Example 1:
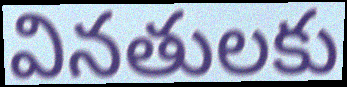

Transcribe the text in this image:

వినతులకు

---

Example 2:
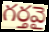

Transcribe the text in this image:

గర్తవై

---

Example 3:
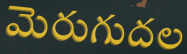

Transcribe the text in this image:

మెరుగుదల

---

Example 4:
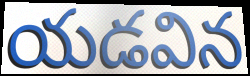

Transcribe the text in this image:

యడవిన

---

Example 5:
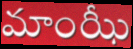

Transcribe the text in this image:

మాంఝీ